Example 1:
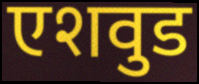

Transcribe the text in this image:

एशवुड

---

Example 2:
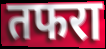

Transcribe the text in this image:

तफरा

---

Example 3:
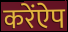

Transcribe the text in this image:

करेंऐप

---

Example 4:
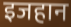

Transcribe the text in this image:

इजहान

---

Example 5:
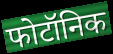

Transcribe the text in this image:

फोटॉनिक